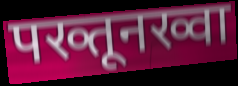
पख्तूनख्वा